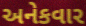
અનેકવાર